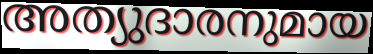
അത്യുദാരനുമായ